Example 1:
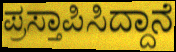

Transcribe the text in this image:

ಪ್ರಸ್ತಾಪಿಸಿದ್ದಾನೆ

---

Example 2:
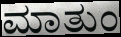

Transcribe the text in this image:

ಮಾತುಂ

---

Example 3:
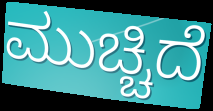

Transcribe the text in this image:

ಮುಚ್ಚಿದೆ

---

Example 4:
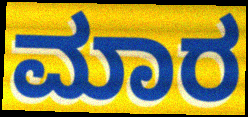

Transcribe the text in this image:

ಮಾರ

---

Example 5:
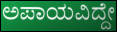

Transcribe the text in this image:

ಅಪಾಯವಿದ್ದೇ